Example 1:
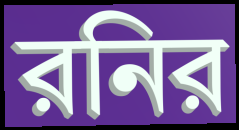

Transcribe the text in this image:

রনির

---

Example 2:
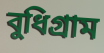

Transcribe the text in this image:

বুধিগ্রাম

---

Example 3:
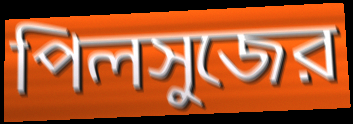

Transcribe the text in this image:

পিলসুজের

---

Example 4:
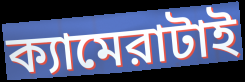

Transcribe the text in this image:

ক্যামেরাটাই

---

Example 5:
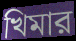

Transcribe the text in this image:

খিমার